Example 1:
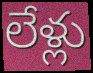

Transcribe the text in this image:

లేళ్లు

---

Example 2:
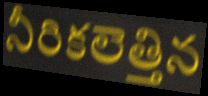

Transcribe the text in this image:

నీరికలెత్తిన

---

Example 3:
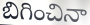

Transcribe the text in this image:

బిగించినా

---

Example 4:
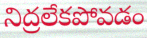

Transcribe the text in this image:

నిద్రలేకపోవడం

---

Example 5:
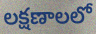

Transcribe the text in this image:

లక్షణాలలో